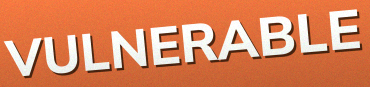
VULNERABLE